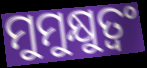
ମୁମୁକ୍ଷୁତ୍ୱଂ